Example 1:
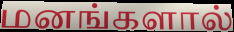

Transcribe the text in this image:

மனங்களால்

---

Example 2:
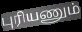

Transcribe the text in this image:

புரியணும்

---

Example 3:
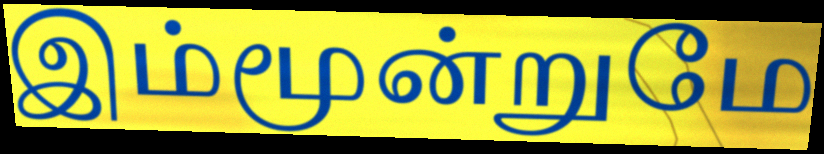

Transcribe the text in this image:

இம்மூன்றுமே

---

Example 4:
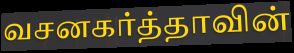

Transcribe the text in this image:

வசனகர்த்தாவின்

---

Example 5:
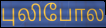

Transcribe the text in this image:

புலிபோல